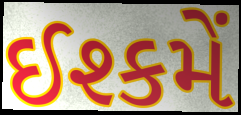
ઈશ્કમેં